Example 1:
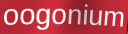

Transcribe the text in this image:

oogonium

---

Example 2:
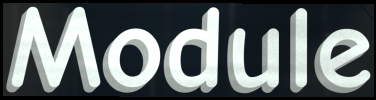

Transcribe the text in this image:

Module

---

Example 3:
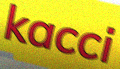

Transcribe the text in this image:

kacci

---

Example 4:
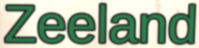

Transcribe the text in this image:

Zeeland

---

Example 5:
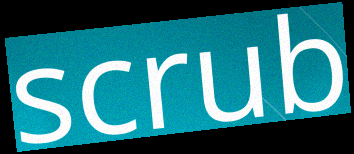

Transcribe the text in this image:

scrub